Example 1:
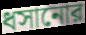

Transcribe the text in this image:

ধসানোর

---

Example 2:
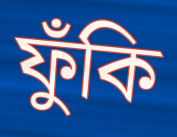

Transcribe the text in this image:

ফুঁকি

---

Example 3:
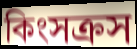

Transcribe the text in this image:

কিংসক্রস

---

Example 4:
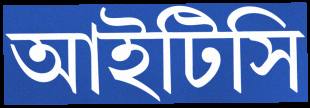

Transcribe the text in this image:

আইটিসি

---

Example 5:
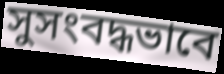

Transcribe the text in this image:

সুসংবদ্ধভাবে